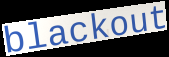
blackout